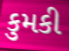
કુમકી